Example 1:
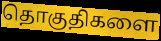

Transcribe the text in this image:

தொகுதிகளை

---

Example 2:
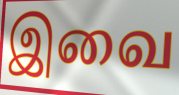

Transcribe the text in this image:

இவை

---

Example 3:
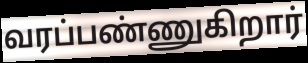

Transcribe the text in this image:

வரப்பண்ணுகிறார்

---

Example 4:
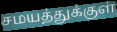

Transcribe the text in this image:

சமயத்துக்குள்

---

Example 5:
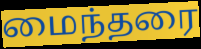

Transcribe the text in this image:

மைந்தரை